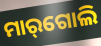
ମାର୍‌ଗୋଲି